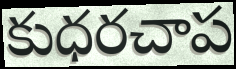
కుధరచాప